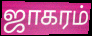
ஜாகரம்